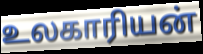
உலகாரியன்